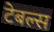
टेबल्स